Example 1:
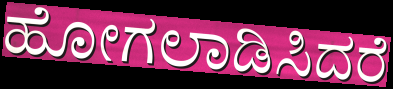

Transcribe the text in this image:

ಹೋಗಲಾಡಿಸಿದರೆ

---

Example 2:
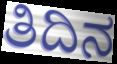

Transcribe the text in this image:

ತಿದಿನ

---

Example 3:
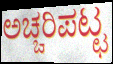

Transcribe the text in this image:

ಅಚ್ಚರಿಪಟ್ಟ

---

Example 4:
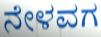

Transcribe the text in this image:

ನೇಳವಗ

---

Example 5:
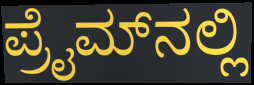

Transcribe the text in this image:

ಪ್ರೈಮ್‌ನಲ್ಲಿ